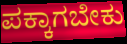
ಪಕ್ಕಾಗಬೇಕು